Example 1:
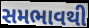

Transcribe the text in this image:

સમભાવથી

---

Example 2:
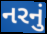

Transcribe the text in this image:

નરનું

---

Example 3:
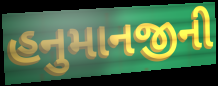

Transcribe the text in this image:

હનુમાનજીની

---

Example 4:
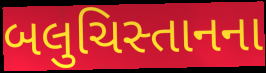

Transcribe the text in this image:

બલુચિસ્તાનના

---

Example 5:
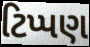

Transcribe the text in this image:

ટિપ્પણ